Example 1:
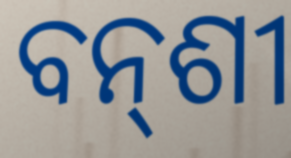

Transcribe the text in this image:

ବନ୍‍ଶୀ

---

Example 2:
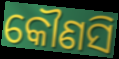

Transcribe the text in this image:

କୌଣସି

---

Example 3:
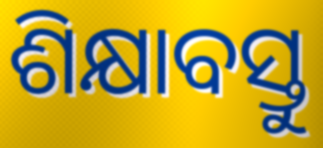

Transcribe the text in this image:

ଶିକ୍ଷାବସ୍ତୁ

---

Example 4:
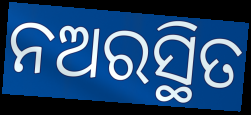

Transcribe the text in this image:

ନଅରସ୍ଥିତ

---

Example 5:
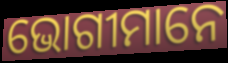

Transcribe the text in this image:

ଭୋଗୀମାନେ